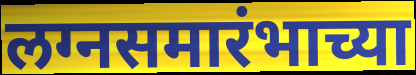
लग्नसमारंभाच्या